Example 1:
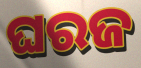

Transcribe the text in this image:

ଘରଜ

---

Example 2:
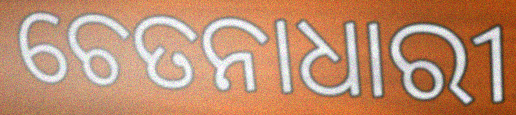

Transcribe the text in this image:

ଚେତନାଧାରୀ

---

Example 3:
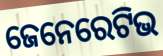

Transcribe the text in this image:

ଜେନେରେଟିଭ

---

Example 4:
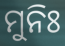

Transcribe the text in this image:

ମୁନିଃ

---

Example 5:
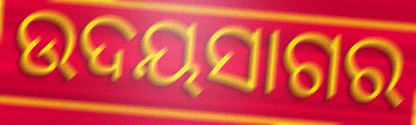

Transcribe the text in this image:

ଉଦୟସାଗର